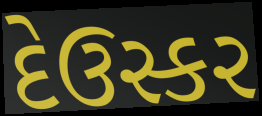
દેઉસ્કર